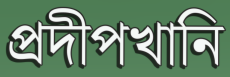
প্রদীপখানি